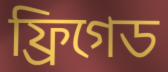
ফ্রিগেড